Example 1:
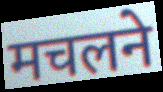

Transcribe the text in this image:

मचलने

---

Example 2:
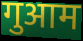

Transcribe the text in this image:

गुआम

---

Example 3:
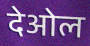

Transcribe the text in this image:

देओल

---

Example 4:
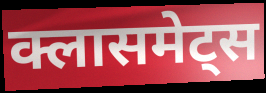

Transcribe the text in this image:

क्लासमेट्स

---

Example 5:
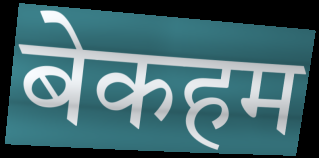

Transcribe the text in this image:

बेकहम